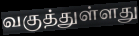
வகுத்துள்ளது